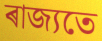
ৰাজ্যতে